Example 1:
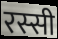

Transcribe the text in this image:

रस्‍सी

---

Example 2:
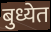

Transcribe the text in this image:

बुध्येत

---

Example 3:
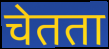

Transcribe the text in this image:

चेतता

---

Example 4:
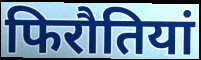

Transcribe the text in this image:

फिरौतियां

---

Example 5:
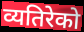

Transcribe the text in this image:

व्यतिरेको